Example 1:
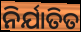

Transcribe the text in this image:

ନିର୍ଯାତିତ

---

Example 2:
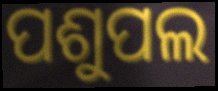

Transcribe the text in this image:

ପଶୁପଲ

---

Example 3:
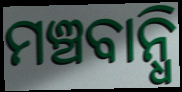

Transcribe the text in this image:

ମଞ୍ଚବାନ୍ଧି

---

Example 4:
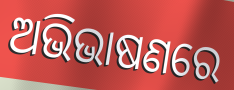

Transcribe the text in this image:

ଅଭିଭାଷଣରେ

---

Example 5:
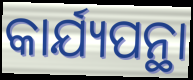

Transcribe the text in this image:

କାର୍ଯ୍ୟପନ୍ଥା